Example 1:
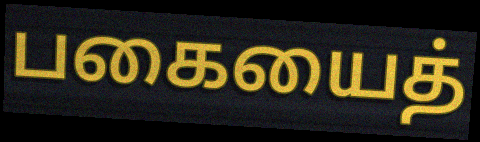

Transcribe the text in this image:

பகையைத்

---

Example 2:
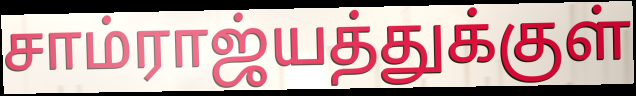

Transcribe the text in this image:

சாம்ராஜ்யத்துக்குள்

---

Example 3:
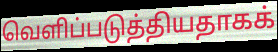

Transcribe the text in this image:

வெளிப்படுத்தியதாகக்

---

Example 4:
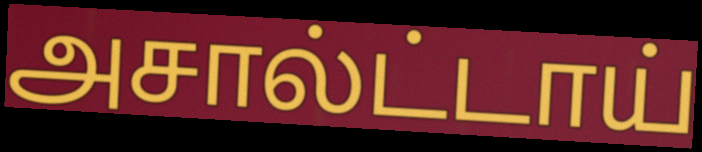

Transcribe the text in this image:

அசால்ட்டாய்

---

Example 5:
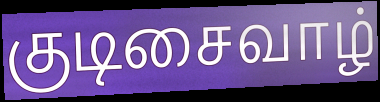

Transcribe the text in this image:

குடிசைவாழ்